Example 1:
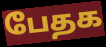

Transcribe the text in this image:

பேதக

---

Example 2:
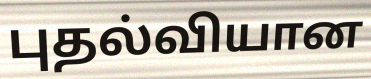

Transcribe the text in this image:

புதல்வியான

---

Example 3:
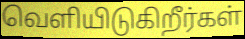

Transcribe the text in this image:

வெளியிடுகிறீர்கள்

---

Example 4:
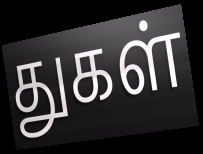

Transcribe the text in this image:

துகள்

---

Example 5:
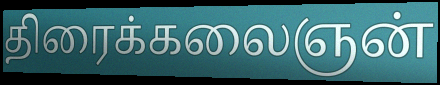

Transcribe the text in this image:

திரைக்கலைஞன்